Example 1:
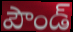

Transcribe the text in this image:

పౌండ్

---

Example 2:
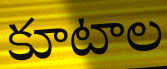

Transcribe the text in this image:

కూటాల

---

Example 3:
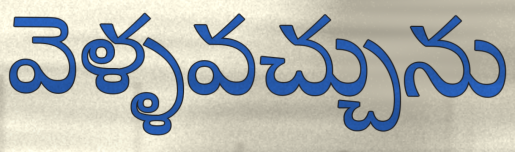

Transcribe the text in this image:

వెళ్ళవచ్చును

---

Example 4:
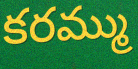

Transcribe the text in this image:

కరమ్ము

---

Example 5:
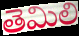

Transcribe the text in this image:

తెమిలి